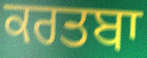
ਕਰਤਬਾ